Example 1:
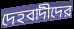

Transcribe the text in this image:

দেহবাদীদের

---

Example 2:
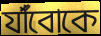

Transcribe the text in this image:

র্যাঁবোকে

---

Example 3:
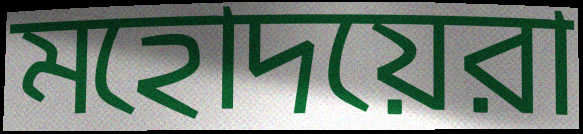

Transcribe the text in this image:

মহোদয়েরা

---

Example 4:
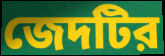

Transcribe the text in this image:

জেদটির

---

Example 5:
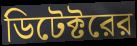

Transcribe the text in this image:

ডিটেক্টরের